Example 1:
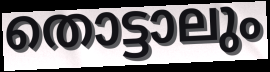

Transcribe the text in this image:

തൊട്ടാലും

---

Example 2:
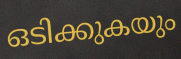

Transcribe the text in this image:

ഒടിക്കുകയും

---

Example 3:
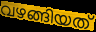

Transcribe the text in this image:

വഴങ്ങിയത്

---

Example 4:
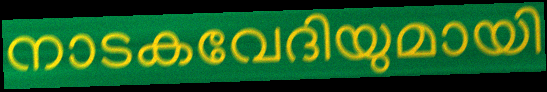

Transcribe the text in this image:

നാടകവേദിയുമായി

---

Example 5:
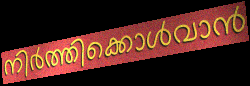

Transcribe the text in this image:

നിർത്തിക്കൊൾവാൻ